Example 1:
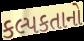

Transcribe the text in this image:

કલ્પકતાનો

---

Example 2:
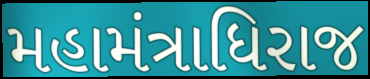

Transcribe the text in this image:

મહામંત્રાધિરાજ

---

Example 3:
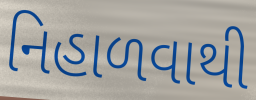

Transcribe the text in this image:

નિહાળવાથી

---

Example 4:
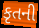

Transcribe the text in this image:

કૃતની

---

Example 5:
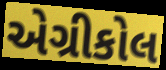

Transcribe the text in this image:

એગ્રીકોલ